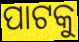
ପାଟକୁ